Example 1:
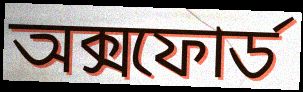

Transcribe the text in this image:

অক্সফোৰ্ড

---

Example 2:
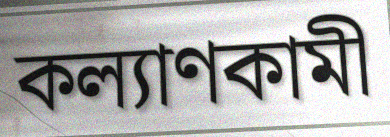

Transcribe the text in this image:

কল্যাণকামী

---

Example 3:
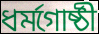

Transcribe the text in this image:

ধৰ্মগোষ্ঠী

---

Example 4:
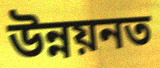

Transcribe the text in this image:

উন্নয়নত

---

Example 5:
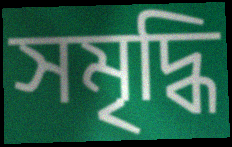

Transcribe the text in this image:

সমৃদ্ধি